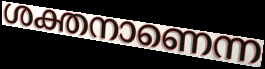
ശക്തനാണെന്ന